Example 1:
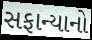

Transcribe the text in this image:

સફાન્યાનો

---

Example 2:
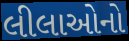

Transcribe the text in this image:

લીલાઓનો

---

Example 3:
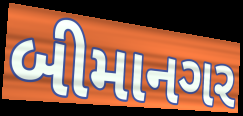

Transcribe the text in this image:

બીમાનગર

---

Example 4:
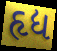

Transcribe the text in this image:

હૃદ્ય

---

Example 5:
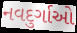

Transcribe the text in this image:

નવદુર્ગાઓ